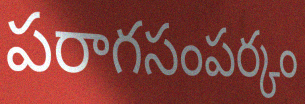
పరాగసంపర్కం